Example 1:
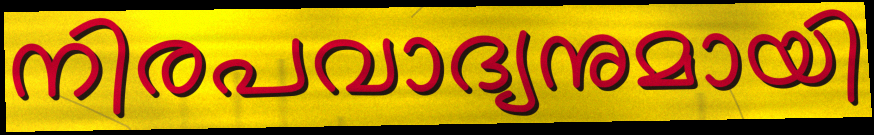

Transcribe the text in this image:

നിരപവാദ്യനുമായി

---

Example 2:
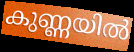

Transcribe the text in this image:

കുണ്ണയിൽ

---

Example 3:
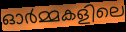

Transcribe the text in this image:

ഓർമ്മകളിലെ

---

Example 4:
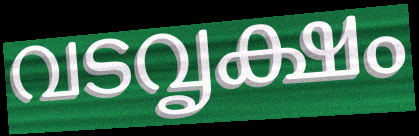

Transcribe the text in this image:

വടവൃക്ഷം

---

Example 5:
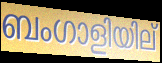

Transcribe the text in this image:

ബംഗാളിയില്